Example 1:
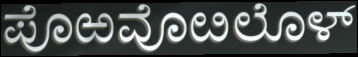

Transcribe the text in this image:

ಪೊಱವೊೞಲೊಳ್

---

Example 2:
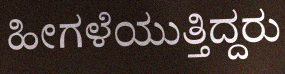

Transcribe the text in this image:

ಹೀಗಳೆಯುತ್ತಿದ್ದರು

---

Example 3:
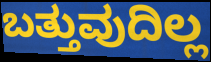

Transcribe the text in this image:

ಬತ್ತುವುದಿಲ್ಲ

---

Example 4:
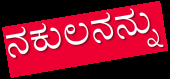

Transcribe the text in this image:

ನಕುಲನನ್ನು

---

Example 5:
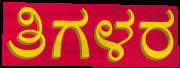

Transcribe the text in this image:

ತಿಗಳರ